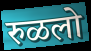
रुळलो